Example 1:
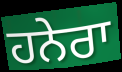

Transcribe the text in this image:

ਹਨੇਰਾ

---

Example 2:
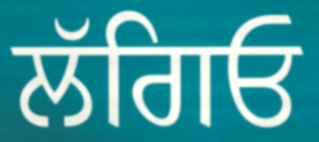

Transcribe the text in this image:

ਲੱਗਿਓ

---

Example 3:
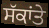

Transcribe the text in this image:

ਸੱਕਾਂਤੇ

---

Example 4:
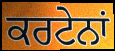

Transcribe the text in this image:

ਕਰਟੇਨਾਂ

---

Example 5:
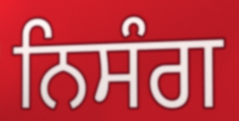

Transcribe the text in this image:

ਨਿਸੰਗ